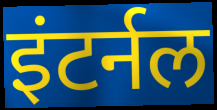
इंटर्नल